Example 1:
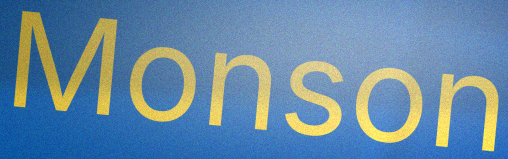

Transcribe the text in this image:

Monson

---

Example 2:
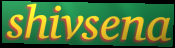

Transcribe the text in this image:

shivsena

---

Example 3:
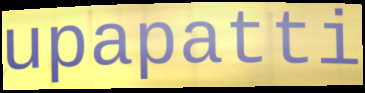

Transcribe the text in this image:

upapatti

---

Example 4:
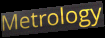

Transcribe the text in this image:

Metrology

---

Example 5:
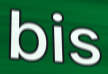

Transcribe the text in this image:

bis